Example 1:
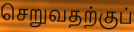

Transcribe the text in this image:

செறுவதற்குப்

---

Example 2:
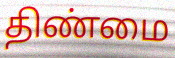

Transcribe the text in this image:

திண்மை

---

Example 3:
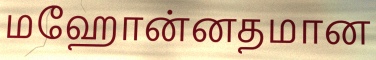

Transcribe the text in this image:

மஹோன்னதமான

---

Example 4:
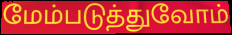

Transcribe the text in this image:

மேம்படுத்துவோம்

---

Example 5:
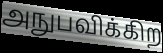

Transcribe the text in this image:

அநுபவிக்கிற